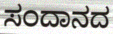
ಸಂದಾನದ